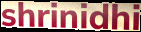
shrinidhi